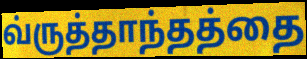
வ்ருத்தாந்தத்தை